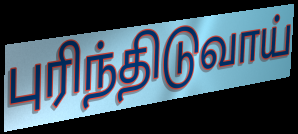
புரிந்திடுவாய்